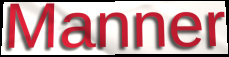
Manner